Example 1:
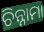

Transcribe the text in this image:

ଚିନ୍ନାମା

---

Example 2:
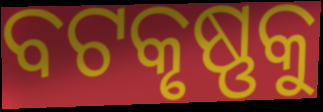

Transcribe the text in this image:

ବଟକୃଷ୍ଣକୁ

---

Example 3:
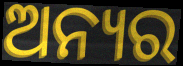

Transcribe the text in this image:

ଅନ୍ୟର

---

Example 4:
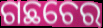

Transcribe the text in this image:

ଗଛଚେର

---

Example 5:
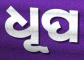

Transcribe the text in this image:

ଧୂପ